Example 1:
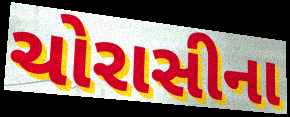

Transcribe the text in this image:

ચોરાસીના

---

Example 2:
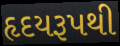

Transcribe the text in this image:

હૃદયરૂપથી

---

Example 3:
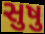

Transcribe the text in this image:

સુષુ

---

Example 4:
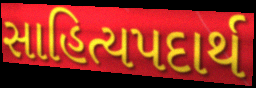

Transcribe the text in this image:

સાહિત્યપદાર્થ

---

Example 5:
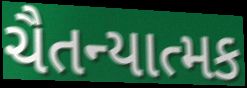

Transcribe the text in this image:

ચૈતન્યાત્મક